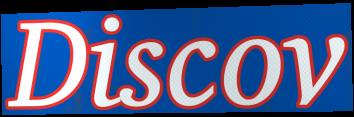
Discov